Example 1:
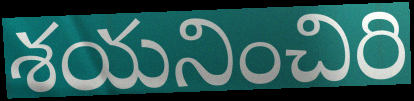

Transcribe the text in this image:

శయనించిరి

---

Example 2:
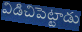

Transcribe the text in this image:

విడిచిపెట్టాడు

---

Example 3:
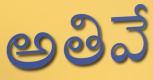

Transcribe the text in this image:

అతివే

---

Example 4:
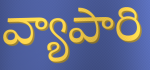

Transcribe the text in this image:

వ్యాపారి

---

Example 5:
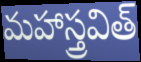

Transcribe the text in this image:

మహాస్త్రవిత్